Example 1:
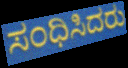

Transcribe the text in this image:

ಸಂಧಿಸಿದರು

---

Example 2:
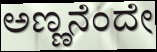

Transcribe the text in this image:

ಅಣ್ಣನೆಂದೇ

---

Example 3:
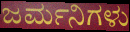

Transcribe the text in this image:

ಜರ್ಮನಿಗಳು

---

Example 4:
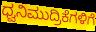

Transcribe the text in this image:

ಧ್ವನಿಮುದ್ರಿಕೆಗಳಿಗೆ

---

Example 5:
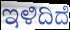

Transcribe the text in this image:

ಇಳಿದಿದೆ